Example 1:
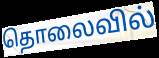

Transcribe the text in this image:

தொலைவில்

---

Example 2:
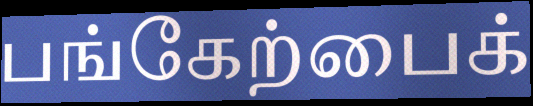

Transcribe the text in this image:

பங்கேற்பைக்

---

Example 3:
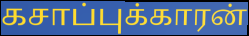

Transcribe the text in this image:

கசாப்புக்காரன்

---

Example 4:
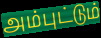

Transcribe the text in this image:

அம்புட்டும்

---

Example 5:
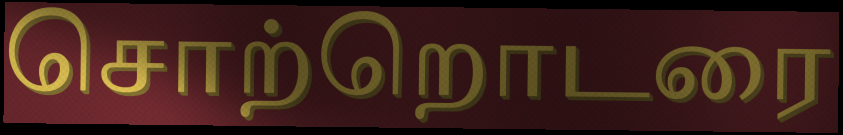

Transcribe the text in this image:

சொற்றொடரை